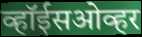
व्हॉईसओव्हर